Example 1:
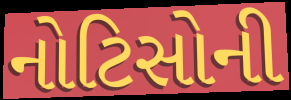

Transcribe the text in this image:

નોટિસોની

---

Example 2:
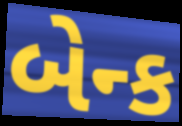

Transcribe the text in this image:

બેન્ક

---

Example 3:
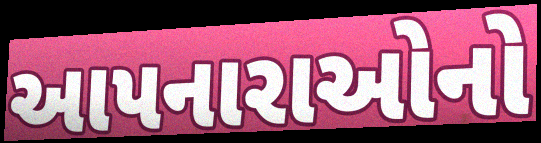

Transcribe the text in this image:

આપનારાઓનો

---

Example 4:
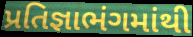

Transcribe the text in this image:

પ્રતિજ્ઞાભંગમાંથી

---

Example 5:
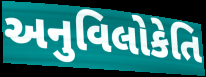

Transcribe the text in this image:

અનુવિલોકેતિ